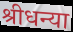
श्रीधन्या